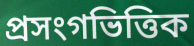
প্ৰসংগভিত্তিক